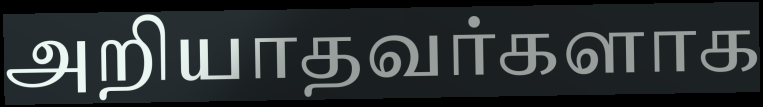
அறியாதவர்களாக